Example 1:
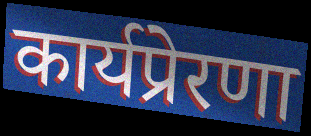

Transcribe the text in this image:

कार्यप्रेरणा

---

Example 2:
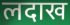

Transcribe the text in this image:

लदाख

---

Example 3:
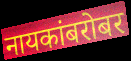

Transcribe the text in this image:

नायकांबरोबर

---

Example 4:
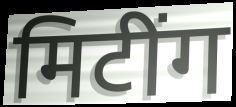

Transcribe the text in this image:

मिटींग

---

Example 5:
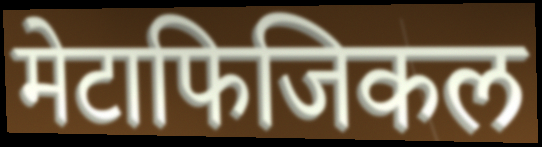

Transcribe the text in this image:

मेटाफिजिकल